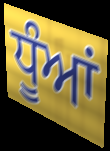
ਧੂੰਆਂ